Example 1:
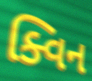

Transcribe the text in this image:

ક્વિન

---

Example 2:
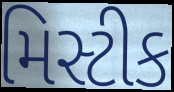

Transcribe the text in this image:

મિસ્ટીક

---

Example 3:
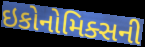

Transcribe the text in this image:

ઇકોનોમિક્સની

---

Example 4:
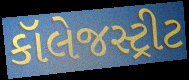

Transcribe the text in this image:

કૉલેજસ્ટ્રીટ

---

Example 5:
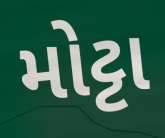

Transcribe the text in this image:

મોટ્ટા